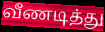
வீணடித்து